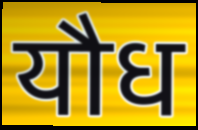
यौध